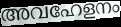
അവഹേളനം